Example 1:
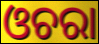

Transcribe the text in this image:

ଓଚରା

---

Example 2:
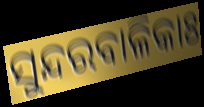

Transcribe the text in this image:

ସୁନ୍ଦରବାଳିକାଃ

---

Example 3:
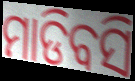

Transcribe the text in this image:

ମାଡିବସି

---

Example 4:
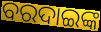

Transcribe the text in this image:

ବରଦାଇଙ୍କ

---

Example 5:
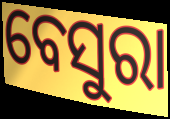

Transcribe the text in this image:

ବେସୁରା